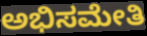
ಅಭಿಸಮೇತಿ